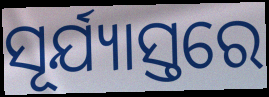
ସୂର୍ଯ୍ୟାସ୍ତରେ